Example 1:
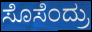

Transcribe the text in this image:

ಸೊಸೆಂದ್ರು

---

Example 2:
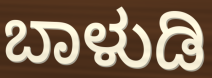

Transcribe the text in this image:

ಬಾಳುಡಿ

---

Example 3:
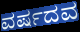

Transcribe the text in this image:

ವರ್ಷದವ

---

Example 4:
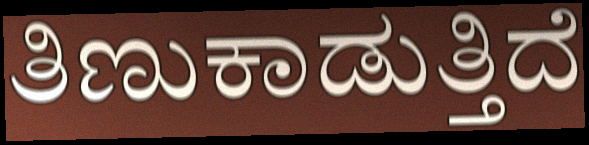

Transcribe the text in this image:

ತಿಣುಕಾಡುತ್ತಿದೆ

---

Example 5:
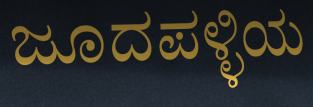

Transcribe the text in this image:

ಜೂದಪಳ್ಳಿಯ